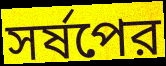
সর্ষপের